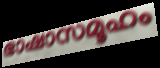
ഭാഷാസമൂഹം